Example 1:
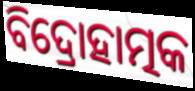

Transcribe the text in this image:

ବିଦ୍ରୋହାତ୍ମକ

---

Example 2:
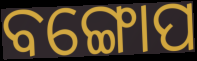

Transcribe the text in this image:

ବଙ୍ଗୋପ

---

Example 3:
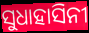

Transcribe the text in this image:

ସୁଧାହାସିନୀ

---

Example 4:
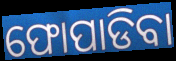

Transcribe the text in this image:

ଫୋପାଡିବା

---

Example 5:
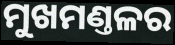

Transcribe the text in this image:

ମୁଖମଣ୍ତଳର